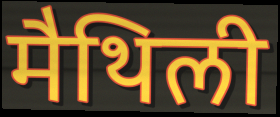
मैथिली